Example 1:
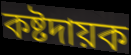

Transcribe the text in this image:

কষ্টদায়ক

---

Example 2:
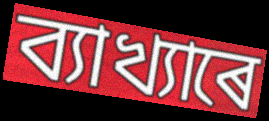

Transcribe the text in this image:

ব্যাখ্যাৰে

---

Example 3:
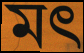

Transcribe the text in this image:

মৎ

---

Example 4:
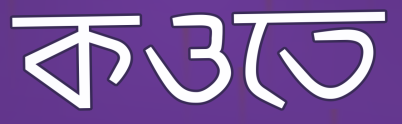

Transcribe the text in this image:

কওতে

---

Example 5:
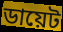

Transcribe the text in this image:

ডায়েট